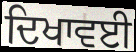
ਦਿਖਾਵਈ